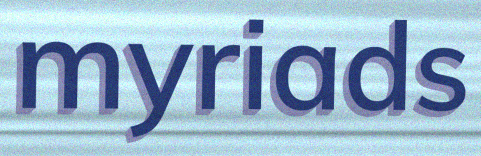
myriads